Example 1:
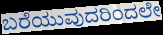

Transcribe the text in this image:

ಬರೆಯುವುದರಿಂದಲೇ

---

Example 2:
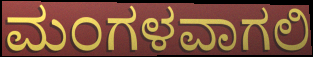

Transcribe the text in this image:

ಮಂಗಳವಾಗಲಿ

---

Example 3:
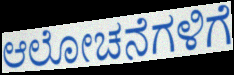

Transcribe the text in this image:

ಆಲೋಚನೆಗಳಿಗೆ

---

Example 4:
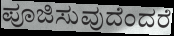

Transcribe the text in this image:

ಪೂಜಿಸುವುದೆಂದರೆ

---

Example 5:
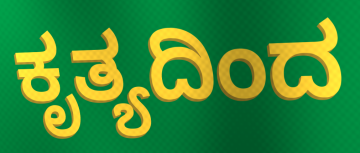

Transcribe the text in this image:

ಕೃತ್ಯದಿಂದ